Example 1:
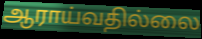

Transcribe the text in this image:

ஆராய்வதில்லை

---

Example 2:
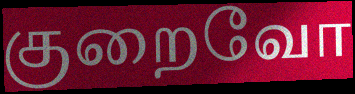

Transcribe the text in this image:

குறைவோ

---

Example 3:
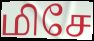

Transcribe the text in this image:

மிசே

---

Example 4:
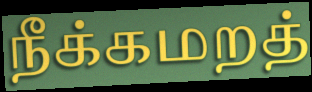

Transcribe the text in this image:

நீக்கமறத்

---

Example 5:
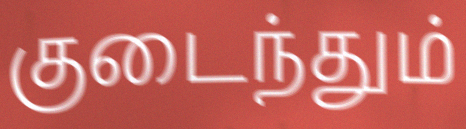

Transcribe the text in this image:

குடைந்தும்